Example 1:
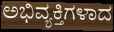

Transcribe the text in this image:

ಅಭಿವ್ಯಕ್ತಿಗಳಾದ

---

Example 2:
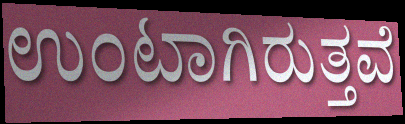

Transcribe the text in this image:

ಉಂಟಾಗಿರುತ್ತವೆ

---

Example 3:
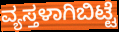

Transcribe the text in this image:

ವ್ಯಸ್ತಳಾಗಿಬಿಟ್ಟೆ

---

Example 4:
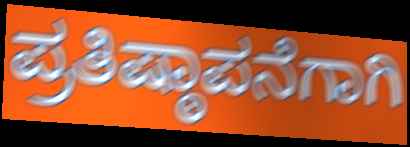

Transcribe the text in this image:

ಪ್ರತಿಷ್ಠಾಪನೆಗಾಗಿ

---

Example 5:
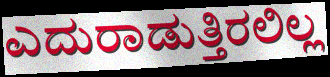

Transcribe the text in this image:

ಎದುರಾಡುತ್ತಿರಲಿಲ್ಲ